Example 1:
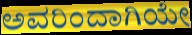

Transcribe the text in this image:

ಅವರಿಂದಾಗಿಯೇ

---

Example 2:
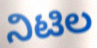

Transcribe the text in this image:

ನಿಟಿಲ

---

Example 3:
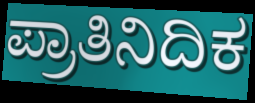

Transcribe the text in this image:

ಪ್ರಾತಿನಿದಿಕ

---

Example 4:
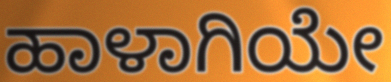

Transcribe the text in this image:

ಹಾಳಾಗಿಯೇ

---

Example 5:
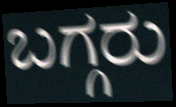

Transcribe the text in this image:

ಬಗ್ಗರು